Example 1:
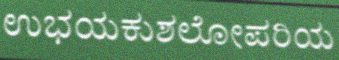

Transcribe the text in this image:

ಉಭಯಕುಶಲೋಪರಿಯ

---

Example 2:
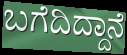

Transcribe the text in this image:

ಬಗೆದಿದ್ದಾನೆ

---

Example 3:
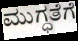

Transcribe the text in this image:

ಮುಗ್ಧತೆಗೆ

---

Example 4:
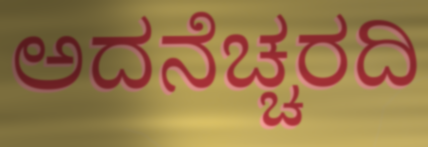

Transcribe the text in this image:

ಅದನೆಚ್ಚರದಿ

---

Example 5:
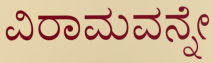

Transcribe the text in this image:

ವಿರಾಮವನ್ನೇ